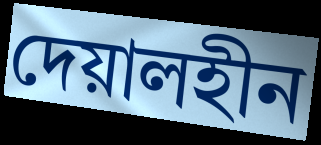
দেয়ালহীন